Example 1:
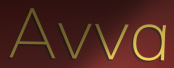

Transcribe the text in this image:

Avva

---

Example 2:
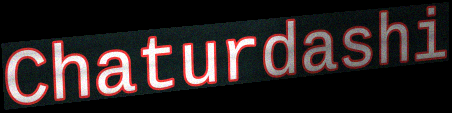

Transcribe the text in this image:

Chaturdashi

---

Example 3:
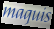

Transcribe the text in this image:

maquis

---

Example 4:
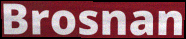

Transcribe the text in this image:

Brosnan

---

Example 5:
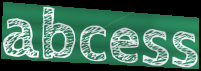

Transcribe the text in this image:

abcess